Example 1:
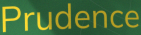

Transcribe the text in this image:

Prudence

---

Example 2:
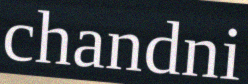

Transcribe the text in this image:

chandni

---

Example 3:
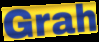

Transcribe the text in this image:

Grah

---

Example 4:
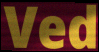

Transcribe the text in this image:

Ved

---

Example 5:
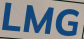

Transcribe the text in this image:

LMG